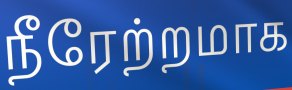
நீரேற்றமாக